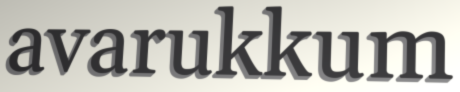
avarukkum